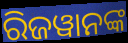
ରିଜୱାନଙ୍କ